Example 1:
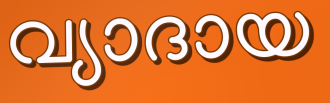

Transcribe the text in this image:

വ്യാദായ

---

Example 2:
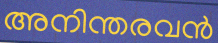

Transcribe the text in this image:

അനിന്തരവൻ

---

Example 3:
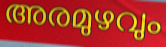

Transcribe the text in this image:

അരമുഴവും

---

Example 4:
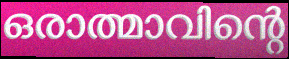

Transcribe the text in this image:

ഒരാത്മാവിന്റെ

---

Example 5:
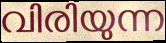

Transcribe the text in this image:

വിരിയുന്ന